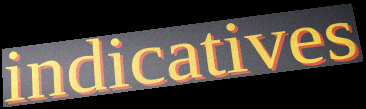
indicatives